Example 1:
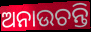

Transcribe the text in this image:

ଅନାଉଚନ୍ତି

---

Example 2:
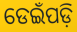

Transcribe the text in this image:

ଡେଇଁପଡ଼ି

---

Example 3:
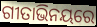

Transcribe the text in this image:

ଗୀତାଭିନୟରେ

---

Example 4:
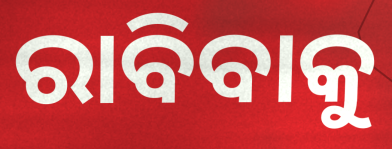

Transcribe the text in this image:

ରାବିବାକୁ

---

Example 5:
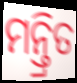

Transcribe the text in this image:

ମନ୍ତ୍ରିତ